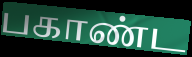
பகாண்ட